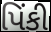
પિંકી